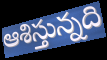
ఆశిస్తున్నది